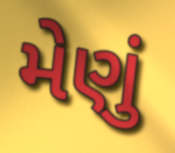
મેણું